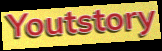
Youtstory